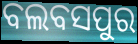
ବଲବସପୁର